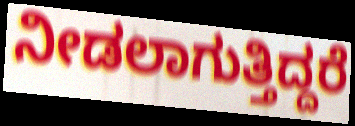
ನೀಡಲಾಗುತ್ತಿದ್ದರೆ